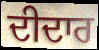
ਦੀਦਾਰ